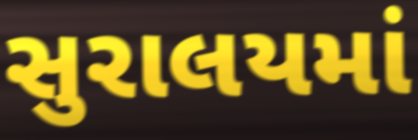
સુરાલયમાં